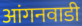
आंगनवाडी